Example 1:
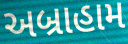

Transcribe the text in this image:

અબ્રાહામ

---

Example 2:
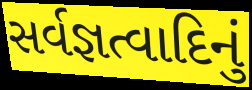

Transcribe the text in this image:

સર્વજ્ઞત્વાદિનું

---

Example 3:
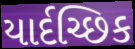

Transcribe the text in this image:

યાર્દચ્છિક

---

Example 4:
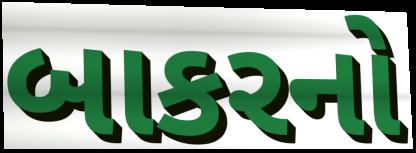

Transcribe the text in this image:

બાકરનો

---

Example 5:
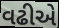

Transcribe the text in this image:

વઢીએ